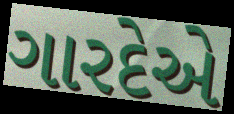
ગારદેએ